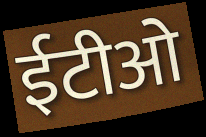
ईटीओ